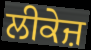
ਲੀਕੇਜ਼